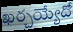
ఖర్చయ్యేదో